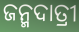
ଜନ୍ମଦାତ୍ରୀ